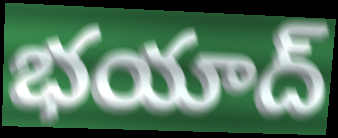
భయాద్